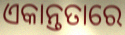
ଏକାନ୍ତତାରେ